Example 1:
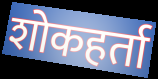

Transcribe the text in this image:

शोकहर्ता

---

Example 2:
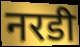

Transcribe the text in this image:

नरडी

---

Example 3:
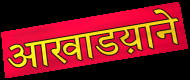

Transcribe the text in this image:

आखाडय़ाने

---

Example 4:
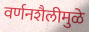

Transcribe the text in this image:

वर्णनशैलीमुळे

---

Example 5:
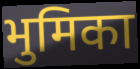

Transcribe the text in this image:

भुमिका